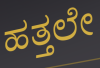
ಹತ್ತಲೇ